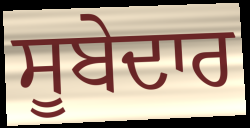
ਸੂਬੇਦਾਰ